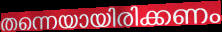
തന്നെയായിരിക്കണം